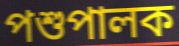
পশুপালক